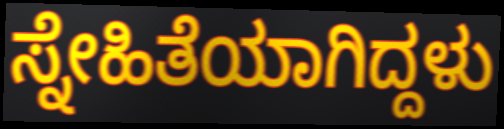
ಸ್ನೇಹಿತೆಯಾಗಿದ್ದಳು